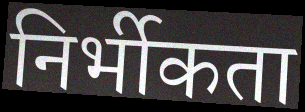
निर्भीकता